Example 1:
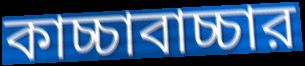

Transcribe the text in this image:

কাচ্চাবাচ্চার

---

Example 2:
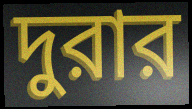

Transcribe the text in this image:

দুরার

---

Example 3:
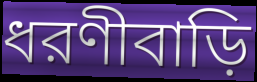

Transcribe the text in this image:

ধরণীবাড়ি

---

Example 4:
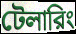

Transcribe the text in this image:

টেলারিং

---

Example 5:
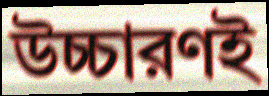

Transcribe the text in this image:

উচ্চারণই